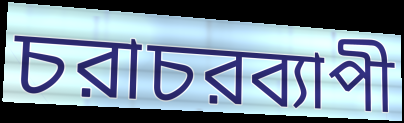
চরাচরব্যাপী